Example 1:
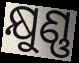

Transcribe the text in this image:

କ୍ଷୁଣ୍ଣ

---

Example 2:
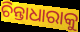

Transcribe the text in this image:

ଚିନ୍ତାଧାରାକୁ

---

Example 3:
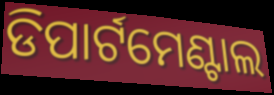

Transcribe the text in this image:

ଡିପାର୍ଟମେଣ୍ଟାଲ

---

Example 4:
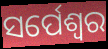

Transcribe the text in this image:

ସର୍ପେଶ୍ଵର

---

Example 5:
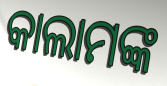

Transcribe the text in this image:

କାଲାମଙ୍କ